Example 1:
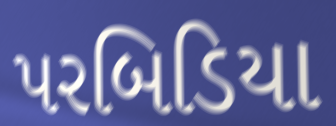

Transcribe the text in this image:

પરબિડિયા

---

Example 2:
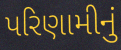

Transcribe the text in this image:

પરિણામીનું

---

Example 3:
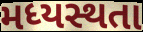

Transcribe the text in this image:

મધ્યસ્થતા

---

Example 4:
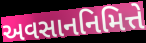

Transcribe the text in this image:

અવસાનનિમિત્તે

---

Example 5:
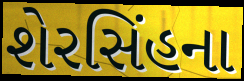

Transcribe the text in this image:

શેરસિંહના